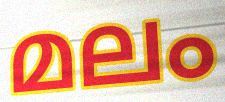
മലം